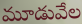
మూడువేల